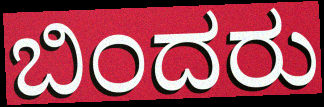
ಬಿಂದರು